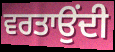
ਵਰਤਾਉਂਦੀ